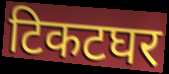
टिकटघर